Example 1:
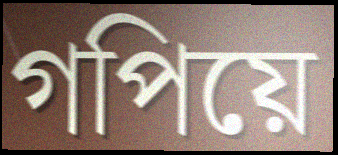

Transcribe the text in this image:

গপিয়ে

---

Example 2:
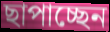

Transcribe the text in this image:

ছাপাচ্ছেন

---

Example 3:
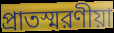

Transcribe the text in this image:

প্রাতস্মরণীয়া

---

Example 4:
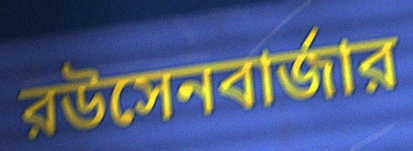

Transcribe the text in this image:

রউসেনবার্জার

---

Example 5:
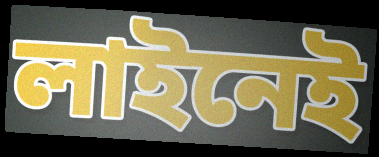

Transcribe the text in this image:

লাইনেই